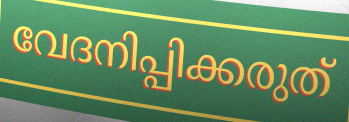
വേദനിപ്പിക്കരുത്